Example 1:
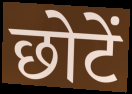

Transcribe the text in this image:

छोटें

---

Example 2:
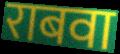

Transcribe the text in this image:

राबवा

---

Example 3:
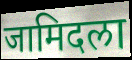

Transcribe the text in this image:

जामिदला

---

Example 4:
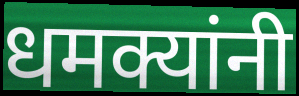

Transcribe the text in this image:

धमक्यांनी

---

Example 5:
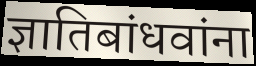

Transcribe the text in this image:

ज्ञातिबांधवांना